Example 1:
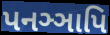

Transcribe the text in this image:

પનઞ્ઞાપિ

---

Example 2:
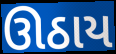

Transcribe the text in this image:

ઊઠાય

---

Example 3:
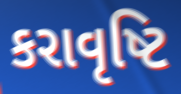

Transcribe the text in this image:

કરાવૃષ્ટિ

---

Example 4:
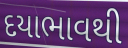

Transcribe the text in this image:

દયાભાવથી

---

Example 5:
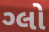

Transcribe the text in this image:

ગ્લો